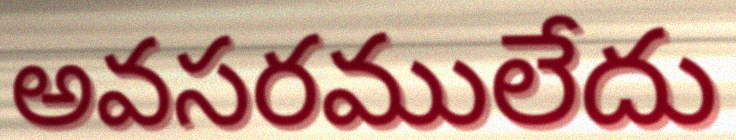
అవసరములేదు